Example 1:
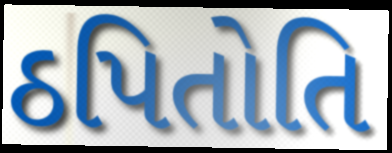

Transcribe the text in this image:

ઠપિતોતિ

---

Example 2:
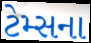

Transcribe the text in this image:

ટેમ્સના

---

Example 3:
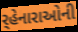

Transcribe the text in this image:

ર્‌હેનારાઓની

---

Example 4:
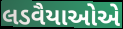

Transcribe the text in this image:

લડવૈયાઓએ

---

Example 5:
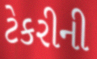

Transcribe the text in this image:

ટેકરીની